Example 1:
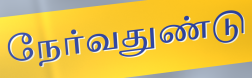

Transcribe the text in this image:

நேர்வதுண்டு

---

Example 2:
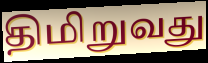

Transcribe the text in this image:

திமிறுவது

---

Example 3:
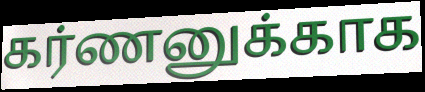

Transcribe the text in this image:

கர்ணனுக்காக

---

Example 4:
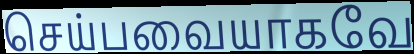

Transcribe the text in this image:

செய்பவையாகவே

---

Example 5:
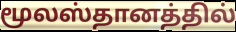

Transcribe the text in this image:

மூலஸ்தானத்தில்